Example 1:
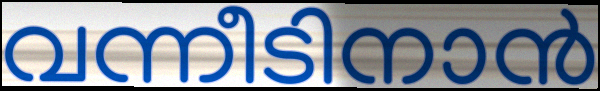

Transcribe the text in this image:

വന്നീടിനാൻ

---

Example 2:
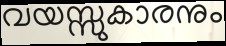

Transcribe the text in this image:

വയസ്സുകാരനും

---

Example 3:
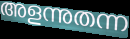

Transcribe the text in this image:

അളന്നുതന്ന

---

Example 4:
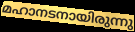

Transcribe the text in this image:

മഹാനടനായിരുന്നു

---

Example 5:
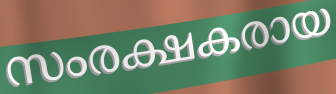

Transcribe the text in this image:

സംരക്ഷകരായ